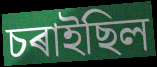
চৰাইছিল